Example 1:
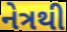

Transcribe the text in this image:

નેત્રથી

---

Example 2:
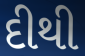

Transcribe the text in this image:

દીથી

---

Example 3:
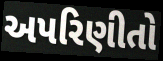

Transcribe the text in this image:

અપરિણીતો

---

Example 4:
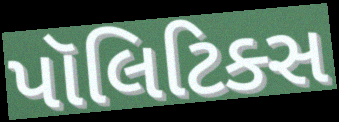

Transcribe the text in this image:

પૉલિટિક્સ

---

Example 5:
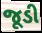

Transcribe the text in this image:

જૂડી